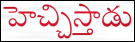
హెచ్చిస్తాడు